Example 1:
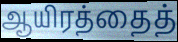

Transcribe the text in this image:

ஆயிரத்தைத்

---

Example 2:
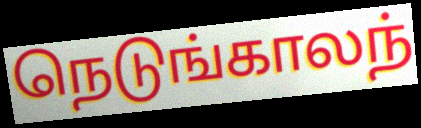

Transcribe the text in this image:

நெடுங்காலந்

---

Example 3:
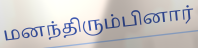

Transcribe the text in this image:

மனந்திரும்பினார்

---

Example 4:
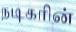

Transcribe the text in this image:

நடிகரின்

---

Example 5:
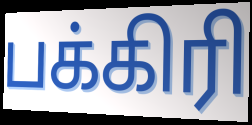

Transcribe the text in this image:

பக்கிரி